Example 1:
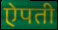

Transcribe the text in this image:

ऐपती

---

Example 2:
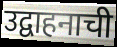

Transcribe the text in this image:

उद्वाहनाची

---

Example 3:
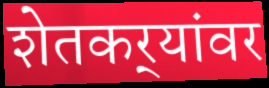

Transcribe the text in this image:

शेतकर्यांवर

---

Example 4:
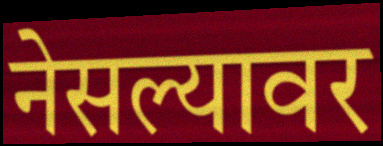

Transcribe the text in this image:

नेसल्यावर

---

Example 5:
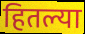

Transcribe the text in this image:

हितल्या